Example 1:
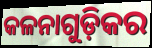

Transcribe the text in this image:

କଳନାଗୁଡ଼ିକର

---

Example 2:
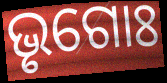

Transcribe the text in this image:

ଭୃଗୋଃ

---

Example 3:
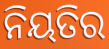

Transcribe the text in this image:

ନିୟତିର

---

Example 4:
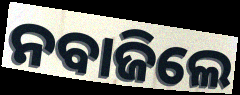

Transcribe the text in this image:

ନବାଜିଲେ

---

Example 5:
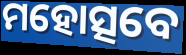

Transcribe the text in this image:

ମହୋତ୍ସବେ